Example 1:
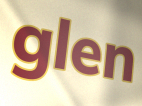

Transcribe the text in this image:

glen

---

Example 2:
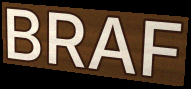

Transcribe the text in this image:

BRAF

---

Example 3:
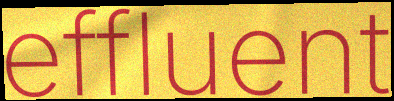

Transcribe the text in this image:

effluent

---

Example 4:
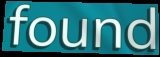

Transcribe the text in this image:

found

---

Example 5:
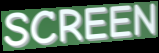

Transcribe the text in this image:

SCREEN